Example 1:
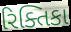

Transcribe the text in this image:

રિક્તિકા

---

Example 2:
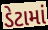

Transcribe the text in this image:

ડેટામાં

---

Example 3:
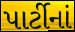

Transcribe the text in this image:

પાર્ટીનાં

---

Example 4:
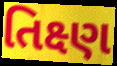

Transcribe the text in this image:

તિક્ષ્ણ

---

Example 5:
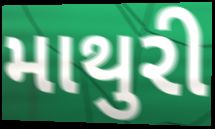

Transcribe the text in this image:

માથુરી